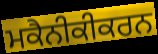
ਮਕੈਨੀਕੀਕਰਨ